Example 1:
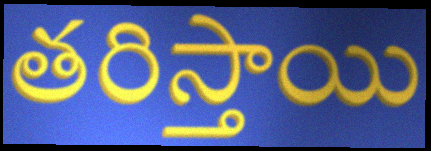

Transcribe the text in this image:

తరిస్తాయి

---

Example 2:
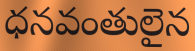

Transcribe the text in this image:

ధనవంతులైన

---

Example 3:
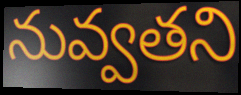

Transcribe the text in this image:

నువ్వతని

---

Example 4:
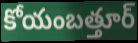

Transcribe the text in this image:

కోయంబత్తూర్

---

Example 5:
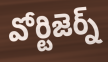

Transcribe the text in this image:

వోర్టిజెర్న్